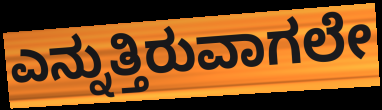
ಎನ್ನುತ್ತಿರುವಾಗಲೇ